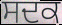
ਸਦਕ